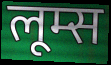
लूम्स